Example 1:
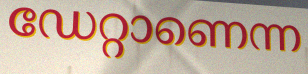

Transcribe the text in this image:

ഡേറ്റാണെന്ന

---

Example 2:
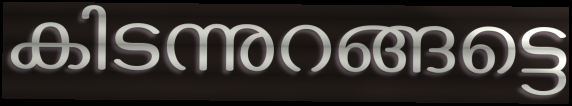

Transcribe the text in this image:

കിടന്നുറങ്ങട്ടെ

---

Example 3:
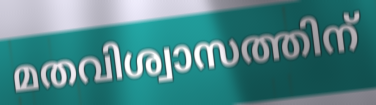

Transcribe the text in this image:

മതവിശ്വാസത്തിന്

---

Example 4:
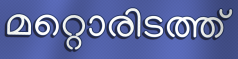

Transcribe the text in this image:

മറ്റൊരിടത്ത്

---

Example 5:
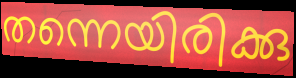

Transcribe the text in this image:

തന്നെയിരിക്കു